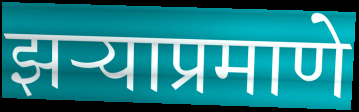
झऱ्याप्रमाणे